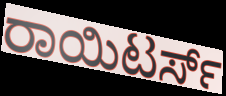
ರಾಯಿಟರ್ಸ್